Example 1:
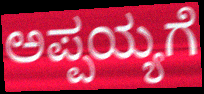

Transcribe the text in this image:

ಅಪ್ಪಯ್ಯಗೆ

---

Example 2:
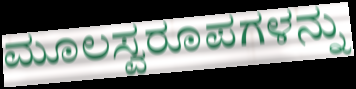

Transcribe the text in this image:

ಮೂಲಸ್ವರೂಪಗಳನ್ನು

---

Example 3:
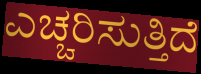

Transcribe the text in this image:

ಎಚ್ಚರಿಸುತ್ತಿದೆ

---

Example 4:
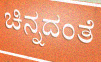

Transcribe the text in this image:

ಚಿನ್ನದಂತೆ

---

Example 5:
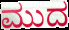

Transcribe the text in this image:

ಮುದ